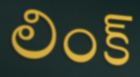
లింక్